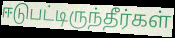
ஈடுபட்டிருந்தீர்கள்